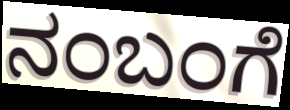
ನಂಬಂಗೆ